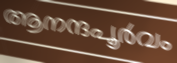
ആനന്ദപൂർവം